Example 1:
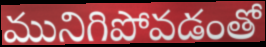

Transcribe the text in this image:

మునిగిపోవడంతో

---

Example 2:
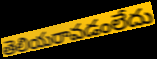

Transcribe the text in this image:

తెలియరావడంలేదు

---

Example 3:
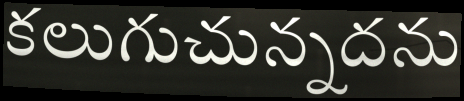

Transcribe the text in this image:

కలుగుచున్నదను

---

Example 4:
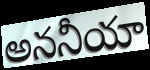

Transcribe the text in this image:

అననీయా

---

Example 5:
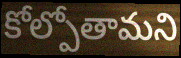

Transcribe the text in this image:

కోల్పోతామని